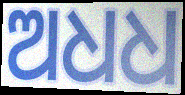
ଅଧଧ